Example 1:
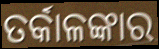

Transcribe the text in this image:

ତର୍କାଳଙ୍କାର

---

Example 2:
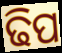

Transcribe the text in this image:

ଢିପ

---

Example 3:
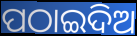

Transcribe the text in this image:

ପଠାଇଦିଅ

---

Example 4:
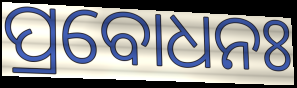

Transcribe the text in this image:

ପ୍ରବୋଧନଃ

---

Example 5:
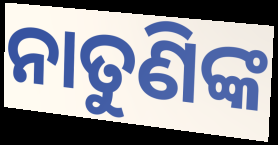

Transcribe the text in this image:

ନାତୁଣିଙ୍କ